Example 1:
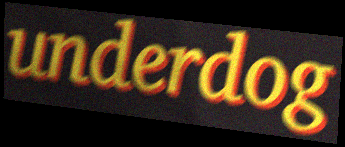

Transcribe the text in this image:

underdog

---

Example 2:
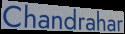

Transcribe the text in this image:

Chandrahar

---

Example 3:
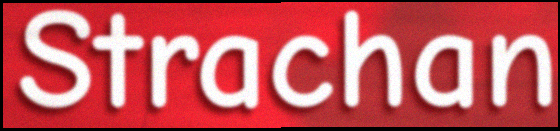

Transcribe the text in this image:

Strachan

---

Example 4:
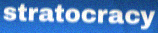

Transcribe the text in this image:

stratocracy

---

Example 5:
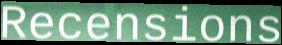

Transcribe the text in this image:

Recensions